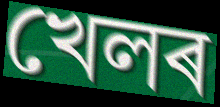
খেলৰ